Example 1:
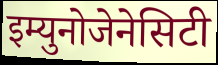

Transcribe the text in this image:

इम्युनोजेनेसिटी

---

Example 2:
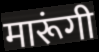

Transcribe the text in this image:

मारूंगी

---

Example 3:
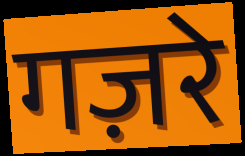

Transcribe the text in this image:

गज़रे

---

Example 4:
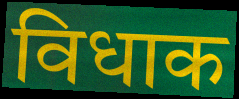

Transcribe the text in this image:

विधाक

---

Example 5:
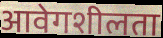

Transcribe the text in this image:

आवेगशीलता